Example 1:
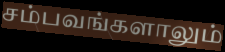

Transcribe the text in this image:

சம்பவங்களாலும்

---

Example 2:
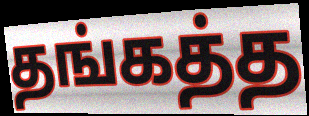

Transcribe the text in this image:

தங்கத்த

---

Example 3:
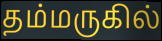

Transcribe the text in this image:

தம்மருகில்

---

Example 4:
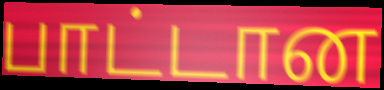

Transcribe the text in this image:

பாட்டான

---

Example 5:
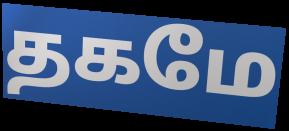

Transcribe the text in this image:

தகமே